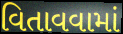
વિતાવવામાં